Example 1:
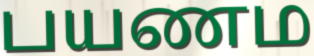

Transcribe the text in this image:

பயணம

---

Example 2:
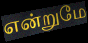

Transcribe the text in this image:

என்றுமே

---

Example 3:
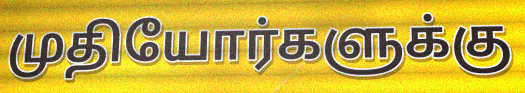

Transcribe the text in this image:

முதியோர்களுக்கு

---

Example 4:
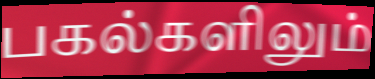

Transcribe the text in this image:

பகல்களிலும்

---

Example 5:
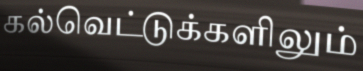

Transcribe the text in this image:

கல்வெட்டுக்களிலும்